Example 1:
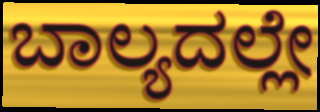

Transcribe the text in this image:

ಬಾಲ್ಯದಲ್ಲೇ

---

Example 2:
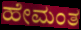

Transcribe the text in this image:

ಹೇಮಂತ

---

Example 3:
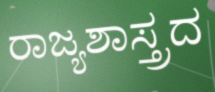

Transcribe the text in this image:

ರಾಜ್ಯಶಾಸ್ತ್ರದ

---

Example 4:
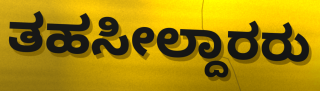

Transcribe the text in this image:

ತಹಸೀಲ್ದಾರರು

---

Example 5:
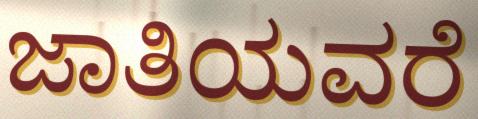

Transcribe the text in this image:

ಜಾತಿಯವರೆ